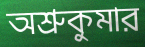
অশ্রুকুমার